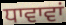
ਧਾਵਾਵਾਂ